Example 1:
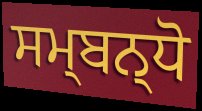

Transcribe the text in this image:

ਸਮ੍ਬਨ੍ਧੋ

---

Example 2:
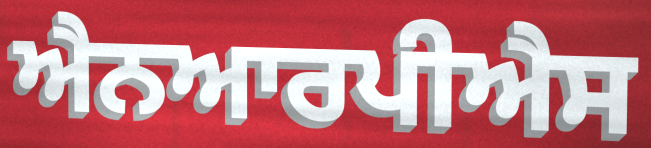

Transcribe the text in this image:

ਐਨਆਰਪੀਐਸ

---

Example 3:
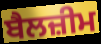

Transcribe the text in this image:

ਬੈਲਜ਼ੀਮ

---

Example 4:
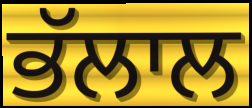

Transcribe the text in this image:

ਭੱਲਾਲ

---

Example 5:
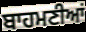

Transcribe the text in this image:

ਬਾਹਮਣੀਆਂ